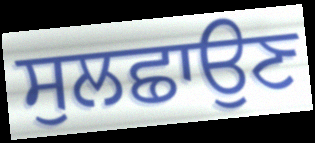
ਸੁਲਛਾਉਣ